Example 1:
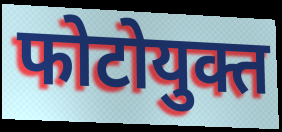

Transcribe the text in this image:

फोटोयुक्त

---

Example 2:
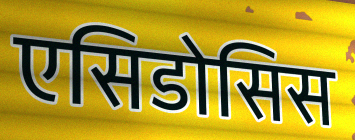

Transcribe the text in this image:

एसिडोसिस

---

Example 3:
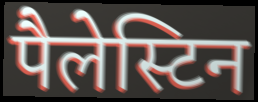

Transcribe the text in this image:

पैलेस्टिन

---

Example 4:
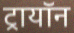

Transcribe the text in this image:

ट्रायॉन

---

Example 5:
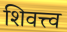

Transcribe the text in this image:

शिवत्त्व